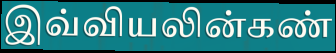
இவ்வியலின்கண்